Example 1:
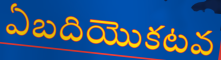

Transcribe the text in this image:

ఏబదియొకటవ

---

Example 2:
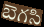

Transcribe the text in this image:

బెగసి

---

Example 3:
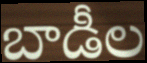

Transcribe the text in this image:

బాడీల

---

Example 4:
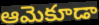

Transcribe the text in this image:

ఆమెకూడా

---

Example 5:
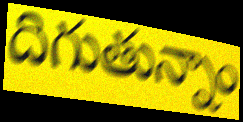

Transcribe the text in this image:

దిగుతున్నాం